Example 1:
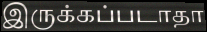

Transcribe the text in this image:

இருக்கப்படாதா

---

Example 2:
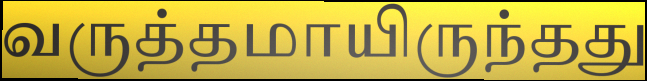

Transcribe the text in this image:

வருத்தமாயிருந்தது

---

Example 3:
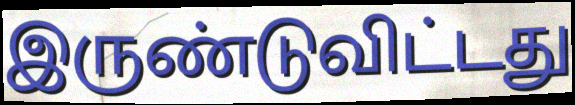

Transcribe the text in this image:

இருண்டுவிட்டது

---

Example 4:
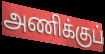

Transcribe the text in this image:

அணிக்குப்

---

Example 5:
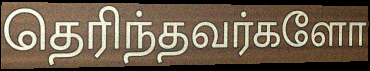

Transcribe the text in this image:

தெரிந்தவர்களோ